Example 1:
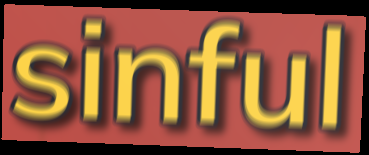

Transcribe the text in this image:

sinful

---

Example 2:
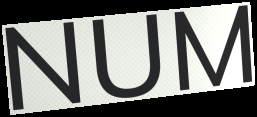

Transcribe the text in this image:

NUM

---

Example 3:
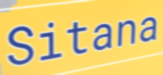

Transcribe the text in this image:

Sitana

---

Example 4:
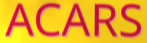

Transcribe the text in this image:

ACARS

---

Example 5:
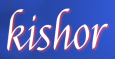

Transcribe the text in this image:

kishor